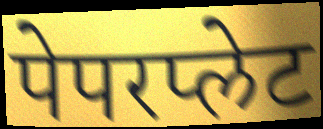
पेपरप्लेट